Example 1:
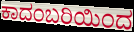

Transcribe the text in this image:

ಕಾದಂಬರಿಯಿಂದ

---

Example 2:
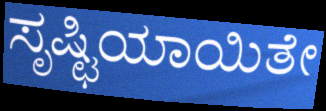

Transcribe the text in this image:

ಸೃಷ್ಟಿಯಾಯಿತೇ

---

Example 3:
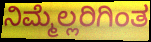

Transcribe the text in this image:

ನಿಮ್ಮೆಲ್ಲರಿಗಿಂತ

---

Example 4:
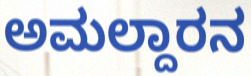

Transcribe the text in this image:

ಅಮಲ್ದಾರನ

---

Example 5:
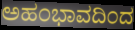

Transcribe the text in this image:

ಅಹಂಭಾವದಿಂದ